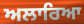
ਅਲਾਰਿਆ